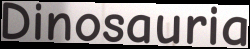
Dinosauria